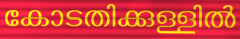
കോടതിക്കുള്ളിൽ